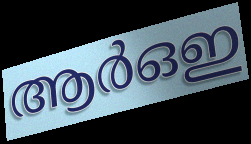
ആർഒഇ